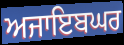
ਅਜਾਇਬਘਰ